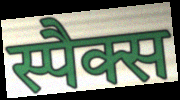
स्पैक्स